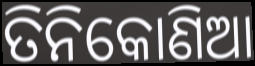
ତିନିକୋଣିଆ